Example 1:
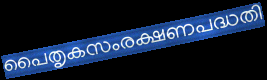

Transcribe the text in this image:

പൈതൃകസംരക്ഷണപദ്ധതി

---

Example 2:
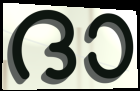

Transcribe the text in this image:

ദാ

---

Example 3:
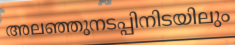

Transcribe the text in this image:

അലഞ്ഞുനടപ്പിനിടയിലും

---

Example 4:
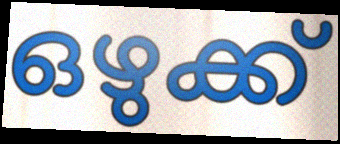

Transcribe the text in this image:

ഒഴുക്ക്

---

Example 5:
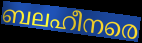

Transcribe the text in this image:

ബലഹീനരെ